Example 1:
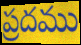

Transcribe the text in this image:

ప్రదము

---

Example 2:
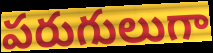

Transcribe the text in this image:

పరుగులుగా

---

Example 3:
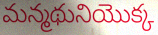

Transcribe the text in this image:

మన్మథునియొక్క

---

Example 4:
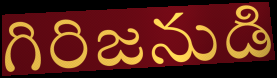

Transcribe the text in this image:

గిరిజనుడి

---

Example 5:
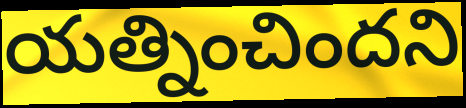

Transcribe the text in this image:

యత్నించిందని